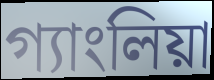
গ্যাংলিয়া